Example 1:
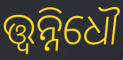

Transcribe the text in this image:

ତ୍ତ୍ଵନ୍ନିଧୌ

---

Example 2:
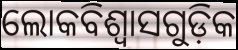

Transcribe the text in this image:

ଲୋକବିଶ୍ୱାସଗୁଡ଼ିକ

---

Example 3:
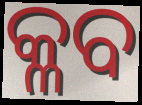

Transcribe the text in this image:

କ୍ଳବ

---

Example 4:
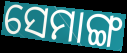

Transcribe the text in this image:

ସେମାଙ୍ଗ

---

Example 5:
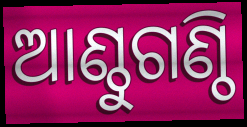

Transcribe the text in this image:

ଆଣ୍ଠୁଗଣ୍ଠି